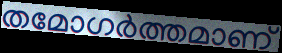
തമോഗർത്തമാണ്